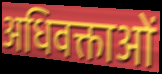
अधिवक्ताओं